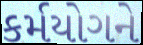
કર્મયોગને